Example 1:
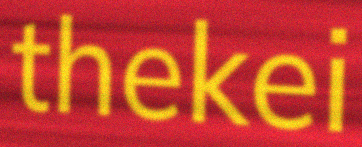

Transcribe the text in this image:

thekei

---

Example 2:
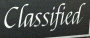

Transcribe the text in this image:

Classified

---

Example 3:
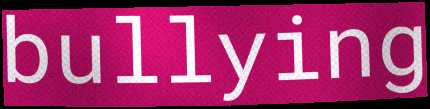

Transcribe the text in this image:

bullying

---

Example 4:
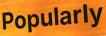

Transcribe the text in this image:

Popularly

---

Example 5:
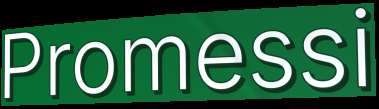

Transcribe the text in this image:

Promessi